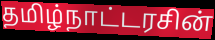
தமிழ்நாட்டரசின்